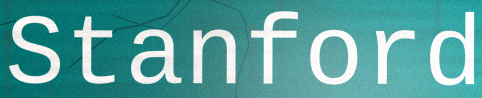
Stanford